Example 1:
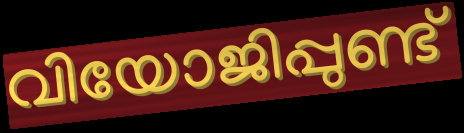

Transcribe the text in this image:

വിയോജിപ്പുണ്ട്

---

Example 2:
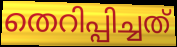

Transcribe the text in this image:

തെറിപ്പിച്ചത്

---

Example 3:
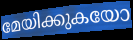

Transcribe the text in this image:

മേയിക്കുകയോ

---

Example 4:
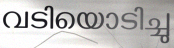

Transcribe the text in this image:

വടിയൊടിച്ചു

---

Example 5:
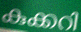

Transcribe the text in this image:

കുക്കറി